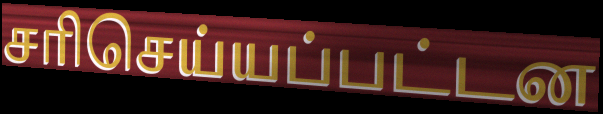
சரிசெய்யப்பட்டன